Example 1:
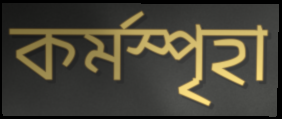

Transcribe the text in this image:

কর্মস্পৃহা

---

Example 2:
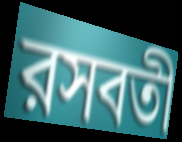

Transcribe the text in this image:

রসবতী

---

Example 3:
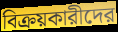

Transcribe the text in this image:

বিক্রয়কারীদের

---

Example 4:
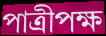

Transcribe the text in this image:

পাত্রীপক্ষ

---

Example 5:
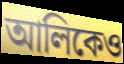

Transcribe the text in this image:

আলিকেও